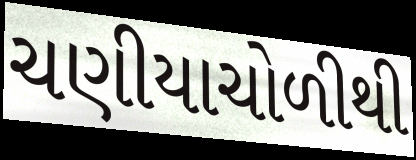
ચણીયાચોળીથી